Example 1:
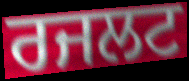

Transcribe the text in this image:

ਰਜਲਟ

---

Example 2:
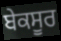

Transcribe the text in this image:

ਬੇਕਸੂਰ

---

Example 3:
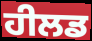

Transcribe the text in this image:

ਹੀਲਡ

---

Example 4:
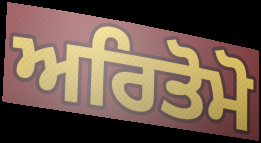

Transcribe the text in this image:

ਅਰਿਤੋਮੋ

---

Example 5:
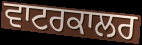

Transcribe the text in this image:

ਵਾਟਰਕਾਲਰ